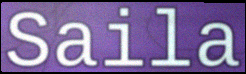
Saila